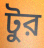
টুর